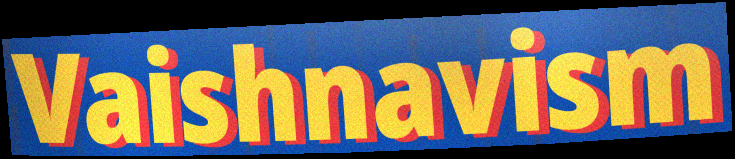
Vaishnavism